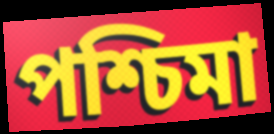
পশ্চিমা